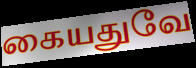
கையதுவே